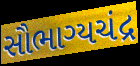
સૌભાગ્યચંદ્ર